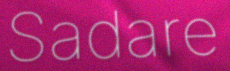
Sadare